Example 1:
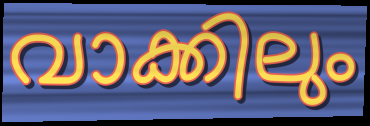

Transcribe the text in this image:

വാക്കിലും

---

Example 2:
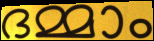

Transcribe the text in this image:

ദമ്മാം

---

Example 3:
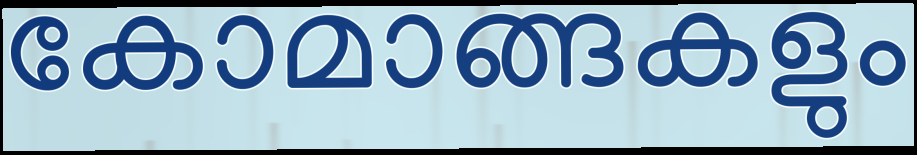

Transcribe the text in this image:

കോമാങ്ങകളും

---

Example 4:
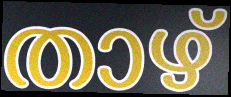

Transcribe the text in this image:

താഴ്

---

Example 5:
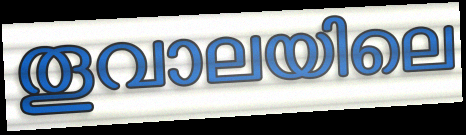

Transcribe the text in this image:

തൂവാലയിലെ